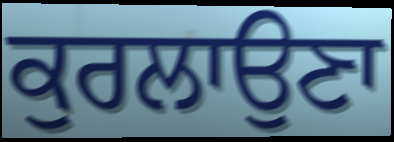
ਕੁਰਲਾਉਣਾ